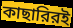
কাছারিরই